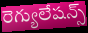
రెగ్యులేషన్స్